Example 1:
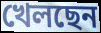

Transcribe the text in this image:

খেলছেন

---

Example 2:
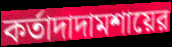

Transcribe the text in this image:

কর্তাদাদামশায়ের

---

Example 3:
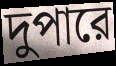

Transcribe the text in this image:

দুপারে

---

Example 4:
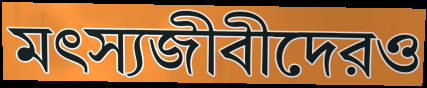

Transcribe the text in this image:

মৎস্যজীবীদেরও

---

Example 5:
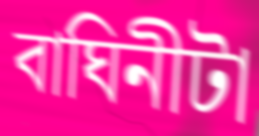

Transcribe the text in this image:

বাঘিনীটা